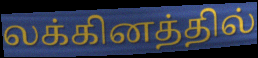
லக்கினத்தில்